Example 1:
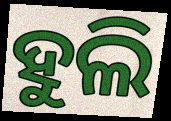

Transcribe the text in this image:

ହୁଲି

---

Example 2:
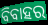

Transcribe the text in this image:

ବିବାହର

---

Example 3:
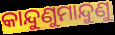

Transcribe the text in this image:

କାନ୍ଦୁଣୁମାନ୍ଦୁଣୁ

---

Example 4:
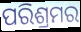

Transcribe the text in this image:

ପରିଶ୍ରମର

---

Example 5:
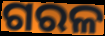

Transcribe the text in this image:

ଗରଳ